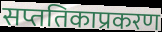
सप्ततिकाप्रकरण